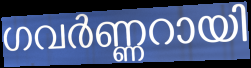
ഗവർണ്ണറായി